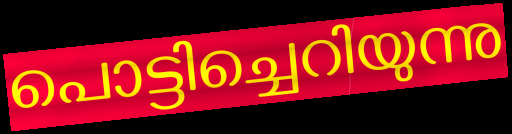
പൊട്ടിച്ചെറിയുന്നു